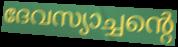
ദേവസ്യാച്ചന്റെ